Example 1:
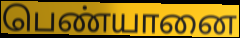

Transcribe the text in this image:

பெண்யானை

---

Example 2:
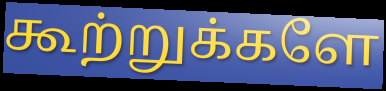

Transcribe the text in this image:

கூற்றுக்களே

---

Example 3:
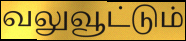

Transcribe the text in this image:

வலுவூட்டும்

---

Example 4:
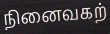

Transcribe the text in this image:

நினைவகற்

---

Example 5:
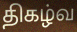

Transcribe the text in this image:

திகழ்வ